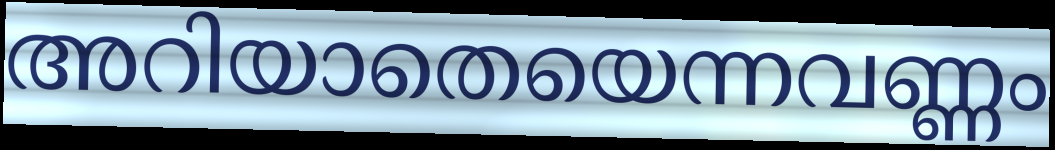
അറിയാതെയെന്നവണ്ണം